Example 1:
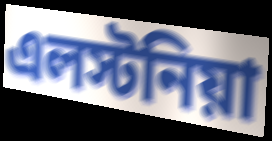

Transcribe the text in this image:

এলস্টনিয়া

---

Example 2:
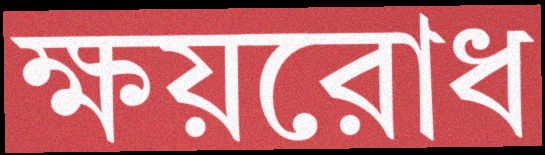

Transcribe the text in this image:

ক্ষয়রোধ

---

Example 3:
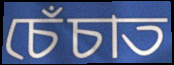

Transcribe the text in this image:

চেঁচাত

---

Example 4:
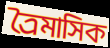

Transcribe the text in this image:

ত্রৈমাসিক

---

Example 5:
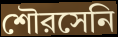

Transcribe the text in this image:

শৌরসেনি